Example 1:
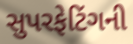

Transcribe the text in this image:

સુપરફેટિંગની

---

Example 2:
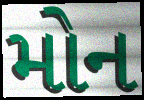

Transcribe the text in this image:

મોન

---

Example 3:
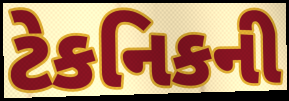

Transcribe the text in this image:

ટેકનિકની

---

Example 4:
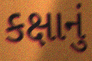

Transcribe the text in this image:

કક્ષાનું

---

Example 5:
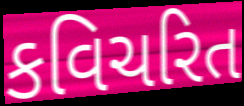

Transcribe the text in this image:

કવિચરિત